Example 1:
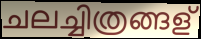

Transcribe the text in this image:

ചലച്ചിത്രങ്ങള്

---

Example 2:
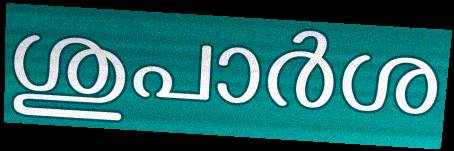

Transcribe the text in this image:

ശുപാർശ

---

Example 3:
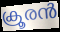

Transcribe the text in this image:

ക്രൂരൻ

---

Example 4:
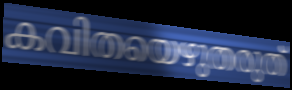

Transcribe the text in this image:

കവിതയെഴുതരുത്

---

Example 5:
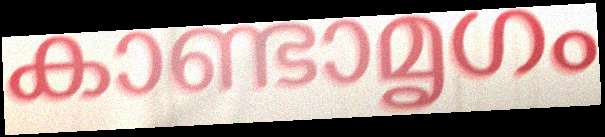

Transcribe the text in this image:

കാണ്ടാമൃഗം